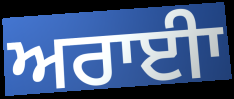
ਅਰਾਈਾ